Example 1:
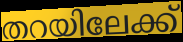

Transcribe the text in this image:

തറയിലേക്ക്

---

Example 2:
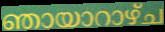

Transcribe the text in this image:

ഞായാറാഴ്ച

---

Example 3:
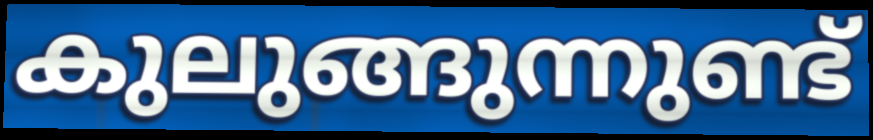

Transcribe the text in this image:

കുലുങ്ങുന്നുണ്ട്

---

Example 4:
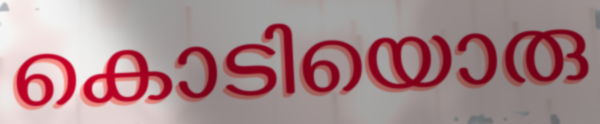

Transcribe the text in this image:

കൊടിയൊരു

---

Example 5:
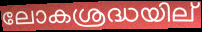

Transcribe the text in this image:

ലോകശ്രദ്ധയില്